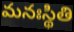
మనఃస్థితి